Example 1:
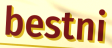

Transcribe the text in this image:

bestni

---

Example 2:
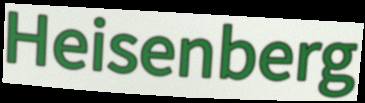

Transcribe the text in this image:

Heisenberg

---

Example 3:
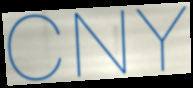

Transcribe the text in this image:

CNY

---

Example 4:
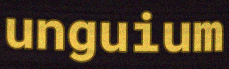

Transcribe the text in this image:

unguium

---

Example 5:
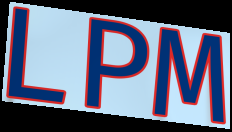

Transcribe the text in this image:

LPM